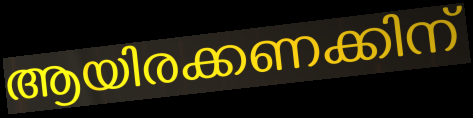
ആയിരക്കണക്കിന്